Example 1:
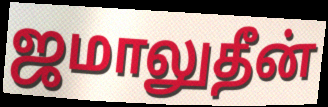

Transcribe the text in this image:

ஜமாலுதீன்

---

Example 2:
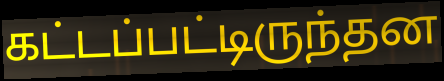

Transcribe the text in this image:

கட்டப்பட்டிருந்தன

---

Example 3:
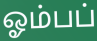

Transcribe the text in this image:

ஓம்பப்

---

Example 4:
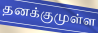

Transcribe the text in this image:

தனக்குமுள்ள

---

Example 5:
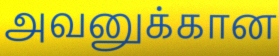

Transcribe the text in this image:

அவனுக்கான